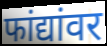
फांद्यांवर